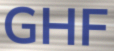
GHF